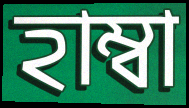
হাম্বা